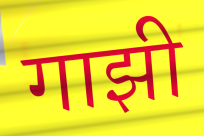
गाझी